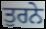
ਤੁਰਨੇ